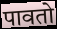
पावतो